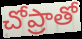
చోప్రాతో